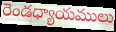
రెండధ్యాయములు